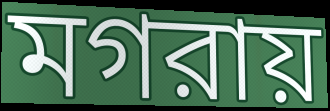
মগরায়